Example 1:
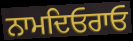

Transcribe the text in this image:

ਨਾਮਦਿਓਰਾਓ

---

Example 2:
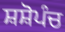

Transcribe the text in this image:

ਸ਼ਸ਼ੋਪੰਚ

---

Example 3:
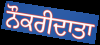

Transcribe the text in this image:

ਨੌਕਰੀਦਾਤਾ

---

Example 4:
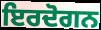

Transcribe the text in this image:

ਇਰਦੋਗਨ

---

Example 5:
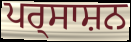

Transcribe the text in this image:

ਪਰ੍ਸਾਸ਼ਨ